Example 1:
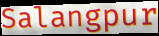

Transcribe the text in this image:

Salangpur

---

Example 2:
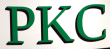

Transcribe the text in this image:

PKC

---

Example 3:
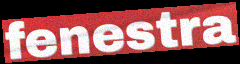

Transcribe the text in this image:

fenestra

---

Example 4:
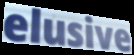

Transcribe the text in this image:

elusive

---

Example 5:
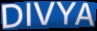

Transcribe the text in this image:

DIVYA